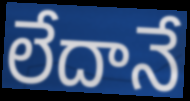
లేదానే